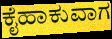
ಕೈಹಾಕುವಾಗ